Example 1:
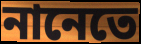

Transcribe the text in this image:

নানেতে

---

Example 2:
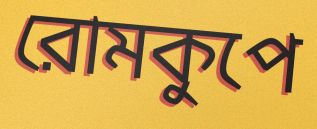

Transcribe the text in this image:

রোমকুপে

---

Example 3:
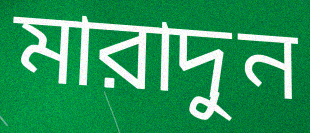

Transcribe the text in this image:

মারাদুন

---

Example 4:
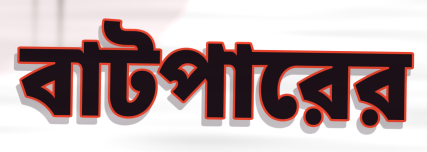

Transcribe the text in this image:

বাটপারের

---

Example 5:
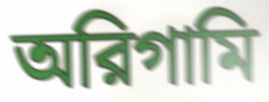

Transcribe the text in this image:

অরিগামি